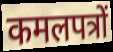
कमलपत्रों